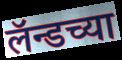
लॅन्डच्या